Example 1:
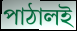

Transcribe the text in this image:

পাঠালই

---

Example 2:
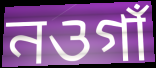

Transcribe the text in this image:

নওগাঁ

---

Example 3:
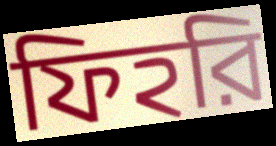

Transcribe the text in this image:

ফিহরি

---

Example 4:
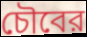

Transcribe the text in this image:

চৌবের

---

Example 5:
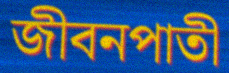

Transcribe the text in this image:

জীবনপাতী